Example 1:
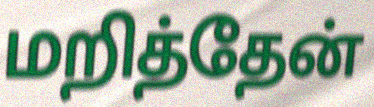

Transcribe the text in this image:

மறித்தேன்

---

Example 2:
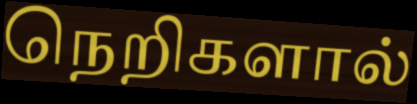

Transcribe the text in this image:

நெறிகளால்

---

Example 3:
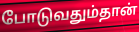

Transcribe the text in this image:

போடுவதும்தான்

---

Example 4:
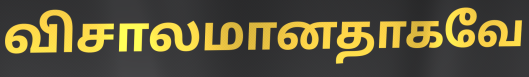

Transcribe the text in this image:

விசாலமானதாகவே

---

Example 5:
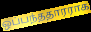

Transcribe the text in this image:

ஒப்பந்ததாரராக